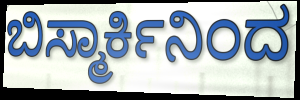
ಬಿಸ್ಮಾರ್ಕಿನಿಂದ